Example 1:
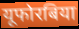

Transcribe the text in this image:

यूफोरबिया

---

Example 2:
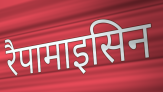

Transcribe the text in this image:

रैपामाइसिन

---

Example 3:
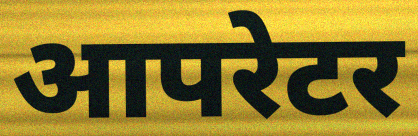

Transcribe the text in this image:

आपरेटर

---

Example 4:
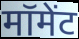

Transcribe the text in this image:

मॉमेंट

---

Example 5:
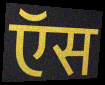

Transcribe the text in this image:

ऍस